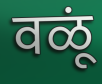
वळूं